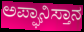
ಅಪ್ಘಾನಿಸ್ತಾನ